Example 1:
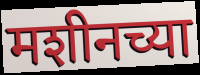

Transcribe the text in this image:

मशीनच्या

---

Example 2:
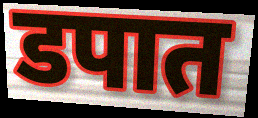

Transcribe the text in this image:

डपात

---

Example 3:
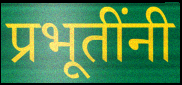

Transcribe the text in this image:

प्रभूतींनी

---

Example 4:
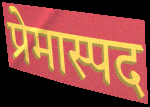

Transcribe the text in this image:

प्रेमास्पद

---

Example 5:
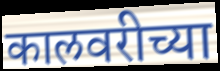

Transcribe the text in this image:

कालवरीच्या